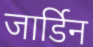
जार्डिन